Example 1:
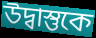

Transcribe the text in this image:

উদ্বাস্তুকে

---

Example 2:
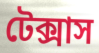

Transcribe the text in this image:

টেক্সাস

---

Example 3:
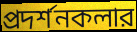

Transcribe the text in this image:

প্রদর্শনকলার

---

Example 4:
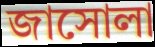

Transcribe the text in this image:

জাসোলা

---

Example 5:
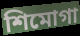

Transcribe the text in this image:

শিমোগা